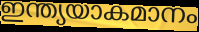
ഇന്ത്യയാകമാനം